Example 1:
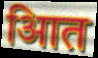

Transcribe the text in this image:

आित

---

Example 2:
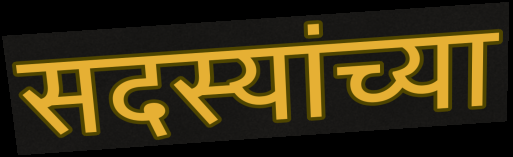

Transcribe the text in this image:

सदस्यांच्या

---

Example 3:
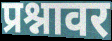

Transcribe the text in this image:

प्रश्नावर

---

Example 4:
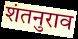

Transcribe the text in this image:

शंतनुराव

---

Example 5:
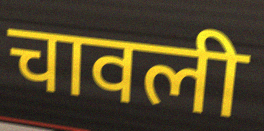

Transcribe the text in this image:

चावली